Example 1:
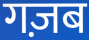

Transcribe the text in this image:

गज़ब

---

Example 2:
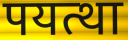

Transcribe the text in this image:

पयत्था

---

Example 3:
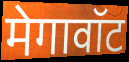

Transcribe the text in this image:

मेगावॉट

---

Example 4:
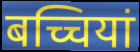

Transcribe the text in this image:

बच्चियां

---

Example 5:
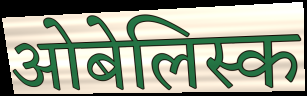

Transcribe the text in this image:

ओबेलिस्क